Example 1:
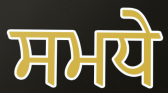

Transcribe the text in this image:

ਸਮਧੇ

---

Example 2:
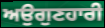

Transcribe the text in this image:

ਅਉਗੁਣਹਾਰੀ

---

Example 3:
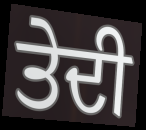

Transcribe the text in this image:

ਤੇਦੀ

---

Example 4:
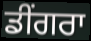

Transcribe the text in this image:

ਡੀਂਗਰਾ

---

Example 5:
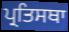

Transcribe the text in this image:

ਪ੍ਰਤਿਸਥਾ